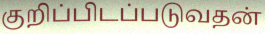
குறிப்பிடப்படுவதன்